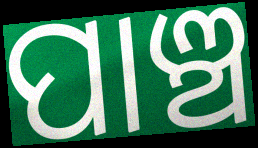
ପାଞ୍ଚ